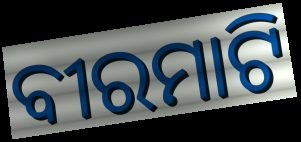
ବୀରମାଟି